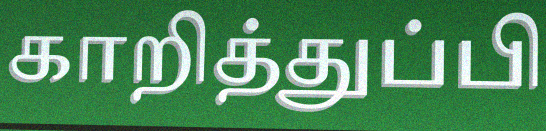
காறித்துப்பி